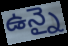
ఉన్నై